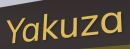
Yakuza